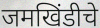
जमखिंडीचे